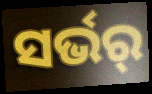
ସର୍ଭର୍